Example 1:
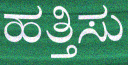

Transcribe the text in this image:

ಹತ್ತಿಸು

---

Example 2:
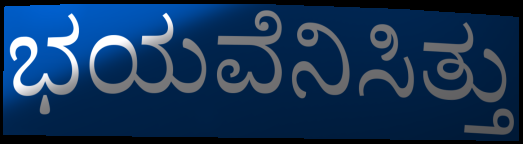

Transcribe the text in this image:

ಭಯವೆನಿಸಿತ್ತು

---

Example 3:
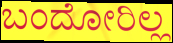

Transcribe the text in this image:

ಬಂದೋರಿಲ್ಲ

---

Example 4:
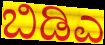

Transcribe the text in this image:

ಬಿಡಿಎ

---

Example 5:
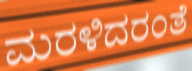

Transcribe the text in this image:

ಮರಳಿದರಂತೆ